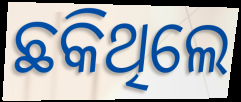
ଛକିଥିଲେ